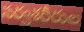
సర్వశరీరుల